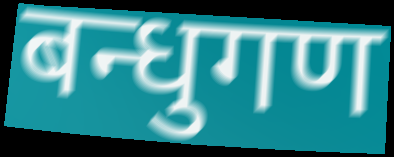
बन्धुगण